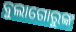
ବୁଲାଗୋରୁଙ୍କ